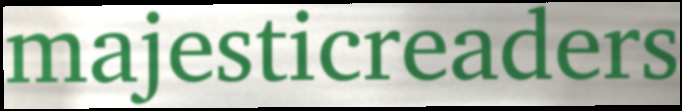
majesticreaders